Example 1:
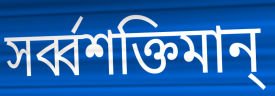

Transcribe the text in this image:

সর্ব্বশক্তিমান্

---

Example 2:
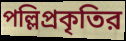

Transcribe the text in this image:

পল্লিপ্রকৃতির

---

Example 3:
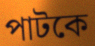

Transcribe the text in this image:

পাটকে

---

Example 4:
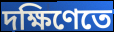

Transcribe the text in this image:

দক্ষিণেতে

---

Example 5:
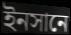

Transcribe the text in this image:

ইনসানে